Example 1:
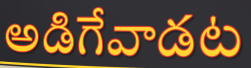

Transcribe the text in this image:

అడిగేవాడట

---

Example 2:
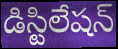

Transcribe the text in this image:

డిస్టిలేషన్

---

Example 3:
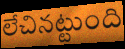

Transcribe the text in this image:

లేచినట్టుంది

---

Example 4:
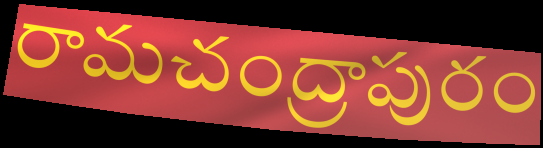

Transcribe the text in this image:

రామచంద్రాపురం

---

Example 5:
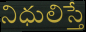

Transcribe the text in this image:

నిధులిస్తే